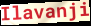
Ilavanji